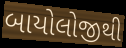
બાયોલોજીથી